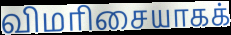
விமரிசையாகக்